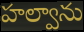
హల్వాను